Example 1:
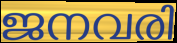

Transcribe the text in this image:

ജനവരി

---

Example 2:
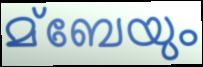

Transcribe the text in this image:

മ്ബേയും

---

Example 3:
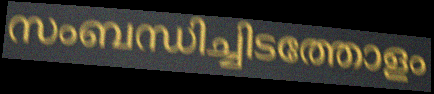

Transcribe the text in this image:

സംബന്ധിച്ചിടത്തോളം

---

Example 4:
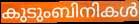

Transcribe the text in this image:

കുടുംബിനികൾ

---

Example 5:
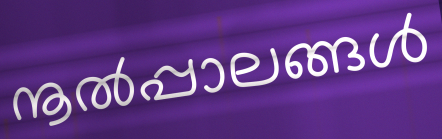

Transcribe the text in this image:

നൂൽപ്പാലങ്ങൾ